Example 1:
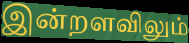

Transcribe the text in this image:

இன்றளவிலும்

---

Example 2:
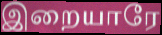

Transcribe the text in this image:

இறையாரே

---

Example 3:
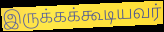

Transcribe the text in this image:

இருக்கக்கூடியவர்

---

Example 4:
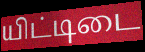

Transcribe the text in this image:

யிட்டிடை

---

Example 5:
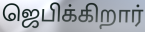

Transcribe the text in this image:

ஜெபிக்கிறார்